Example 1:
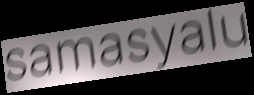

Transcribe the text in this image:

samasyalu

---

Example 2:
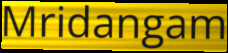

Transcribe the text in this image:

Mridangam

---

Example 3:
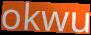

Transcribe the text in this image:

okwu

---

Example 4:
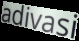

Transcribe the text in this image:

adivasi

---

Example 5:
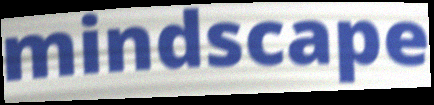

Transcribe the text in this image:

mindscape